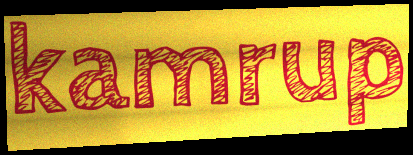
kamrup